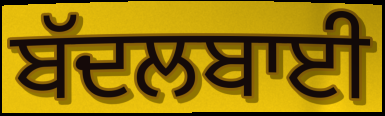
ਬੱਦਲਬਾਈ